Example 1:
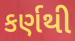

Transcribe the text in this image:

કર્ણથી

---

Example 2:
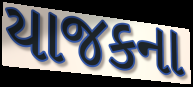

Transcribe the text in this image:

યાજકના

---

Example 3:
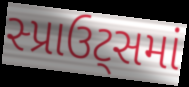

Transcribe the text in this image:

સ્પ્રાઉટ્સમાં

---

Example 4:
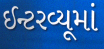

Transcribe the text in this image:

ઈન્ટરવ્યૂમાં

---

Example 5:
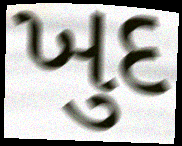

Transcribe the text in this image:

ખુદ